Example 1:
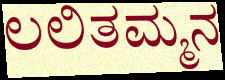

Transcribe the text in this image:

ಲಲಿತಮ್ಮನ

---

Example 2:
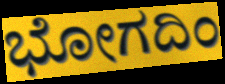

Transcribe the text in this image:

ಭೋಗದಿಂ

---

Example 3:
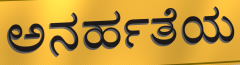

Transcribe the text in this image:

ಅನರ್ಹತೆಯ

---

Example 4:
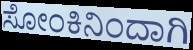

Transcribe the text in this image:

ಸೋಂಕಿನಿಂದಾಗಿ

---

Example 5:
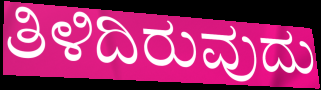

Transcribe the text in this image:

ತಿಳಿದಿರುವುದು